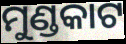
ମୁଣ୍ଡକାଟ